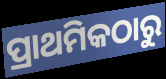
ପ୍ରାଥମିକଠାରୁ